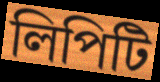
লিপিটি